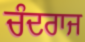
ਚੰਦਰਾਜ